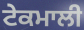
ਟੇਕਮਾਲੀ